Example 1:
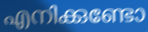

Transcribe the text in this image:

എനിക്കുണ്ടോ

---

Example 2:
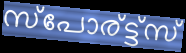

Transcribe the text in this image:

സ്പോര്ട്ട്സ്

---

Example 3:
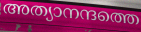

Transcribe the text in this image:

അത്യാനന്ദത്തെ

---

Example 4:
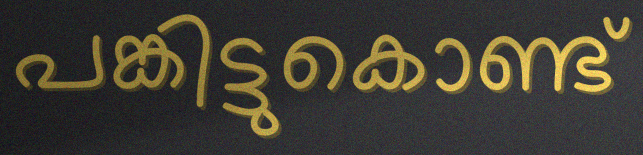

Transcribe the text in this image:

പങ്കിട്ടുകൊണ്ട്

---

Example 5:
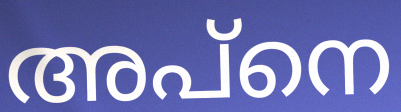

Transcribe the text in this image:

അപ്നെ